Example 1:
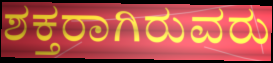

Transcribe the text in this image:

ಶಕ್ತರಾಗಿರುವರು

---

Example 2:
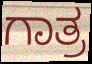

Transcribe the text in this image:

ಗಾತ್ರ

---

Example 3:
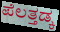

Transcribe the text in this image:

ಪೆಲತ್ತಡ್ಕ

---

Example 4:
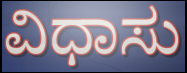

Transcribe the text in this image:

ವಿಧಾಸು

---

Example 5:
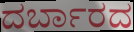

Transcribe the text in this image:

ದರ್ಬಾರದ